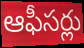
ఆఫీసర్లు